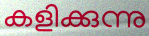
കളിക്കുന്നു